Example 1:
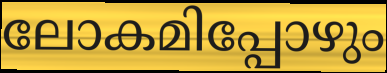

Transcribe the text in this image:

ലോകമിപ്പോഴും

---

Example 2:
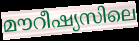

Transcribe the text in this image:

മൗറീഷ്യസിലെ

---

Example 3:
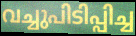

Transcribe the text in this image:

വച്ചുപിടിപ്പിച്ച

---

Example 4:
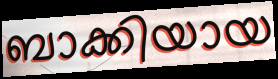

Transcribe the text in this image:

ബാക്കിയായ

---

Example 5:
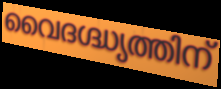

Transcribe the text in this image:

വൈദഗ്ദ്ധ്യത്തിന്